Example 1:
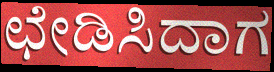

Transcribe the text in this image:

ಛೇಡಿಸಿದಾಗ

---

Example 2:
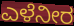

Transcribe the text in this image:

ಎಳೆನೀರ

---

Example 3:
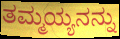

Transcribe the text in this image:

ತಮ್ಮಯ್ಯನನ್ನು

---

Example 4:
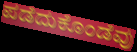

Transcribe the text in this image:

ಪಡೆದುಕೊಂಡೆವು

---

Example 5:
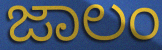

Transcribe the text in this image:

ಜಾಲಂ